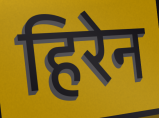
हिरेन